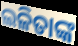
ଲଳିତାଙ୍କ